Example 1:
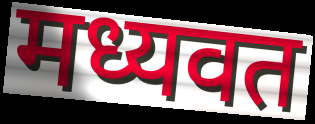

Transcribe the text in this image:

मध्यवत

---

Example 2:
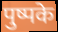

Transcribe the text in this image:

पुष्पके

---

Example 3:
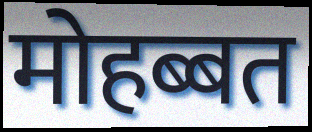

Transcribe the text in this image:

मोहब्बत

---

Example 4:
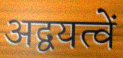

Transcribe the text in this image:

अद्वयत्वें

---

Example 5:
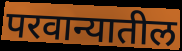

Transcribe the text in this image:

परवान्यातील